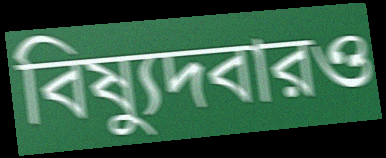
বিষ্যুদবারও